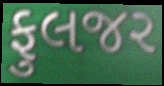
ફુલજર